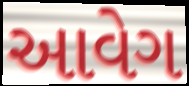
આવેગ